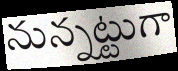
నున్నట్టుగా